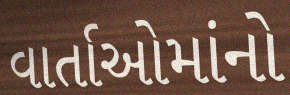
વાર્તાઓમાંનો